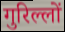
गुरिल्लों